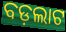
ବଡ଼ଲାଟ